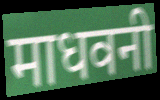
माधवनी